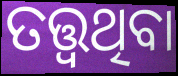
ତତ୍ତ୍ୱଥିବା